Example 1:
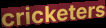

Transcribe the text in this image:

cricketers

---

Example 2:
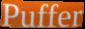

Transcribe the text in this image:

Puffer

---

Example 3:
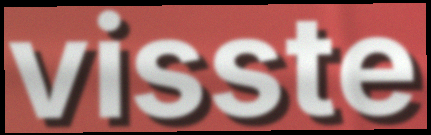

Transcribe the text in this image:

visste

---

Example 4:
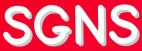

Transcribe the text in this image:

SGNS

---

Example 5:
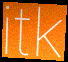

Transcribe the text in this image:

itk